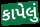
કાપેલું